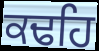
ਕਢਹਿ